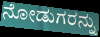
ನೋಡುಗರನ್ನು